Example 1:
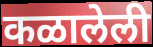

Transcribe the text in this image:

कळालेली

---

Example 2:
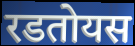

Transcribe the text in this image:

रडतोयस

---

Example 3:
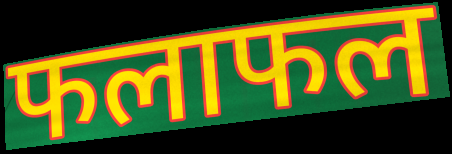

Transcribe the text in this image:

फलाफल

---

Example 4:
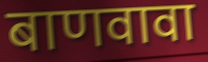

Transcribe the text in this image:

बाणवावा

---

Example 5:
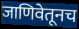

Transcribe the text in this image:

जाणिवेतूनच